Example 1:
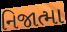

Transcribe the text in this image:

નિજાત્મા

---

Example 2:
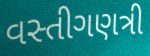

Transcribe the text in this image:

વસ્તીગણત્રી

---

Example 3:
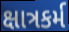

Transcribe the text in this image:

ક્ષાત્રકર્મ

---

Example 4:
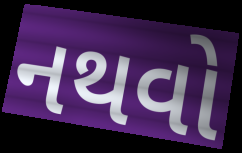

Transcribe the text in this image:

નથવો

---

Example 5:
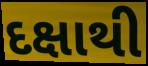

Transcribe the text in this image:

દક્ષાથી